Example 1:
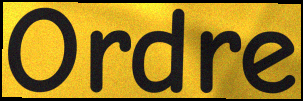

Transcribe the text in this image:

Ordre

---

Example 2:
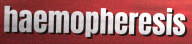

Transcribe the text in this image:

haemopheresis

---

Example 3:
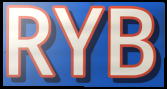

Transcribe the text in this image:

RYB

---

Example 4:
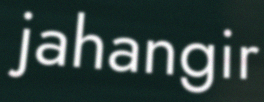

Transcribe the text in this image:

jahangir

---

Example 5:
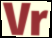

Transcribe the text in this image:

Vr